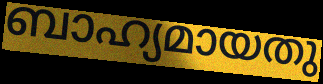
ബാഹ്യമായതു